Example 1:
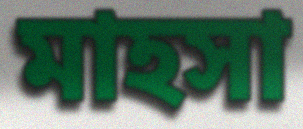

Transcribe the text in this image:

মাহসা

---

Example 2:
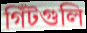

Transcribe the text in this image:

গিঁটগুলি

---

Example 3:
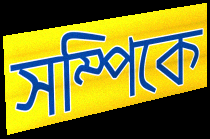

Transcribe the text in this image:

সম্পিকে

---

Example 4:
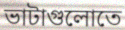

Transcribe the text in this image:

ভাটাগুলোতে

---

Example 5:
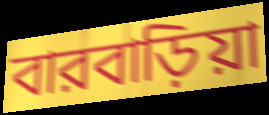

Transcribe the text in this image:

বারবাড়িয়া